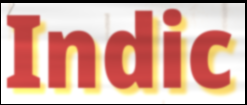
Indic